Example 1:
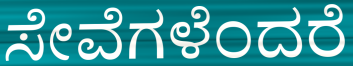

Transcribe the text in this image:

ಸೇವೆಗಳೆಂದರೆ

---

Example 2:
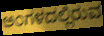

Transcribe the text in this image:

ಅಂಗಳದಲ್ಲಿರುವ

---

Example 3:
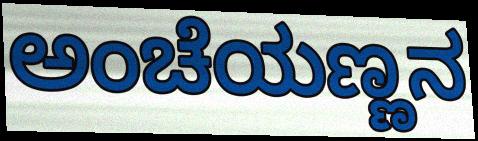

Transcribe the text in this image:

ಅಂಚೆಯಣ್ಣನ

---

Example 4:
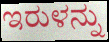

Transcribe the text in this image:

ಇರುಳನ್ನು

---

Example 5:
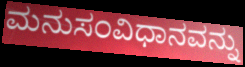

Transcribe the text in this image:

ಮನುಸಂವಿಧಾನವನ್ನು